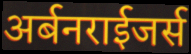
अर्बनराईजर्स